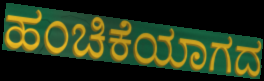
ಹಂಚಿಕೆಯಾಗದ